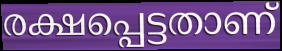
രക്ഷപ്പെട്ടതാണ്